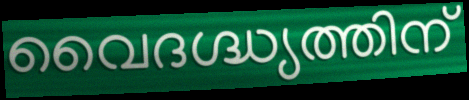
വൈദഗ്ദ്ധ്യത്തിന്